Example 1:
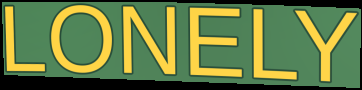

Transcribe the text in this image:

LONELY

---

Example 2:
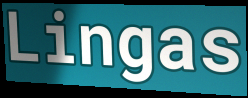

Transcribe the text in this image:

Lingas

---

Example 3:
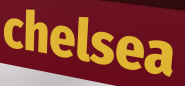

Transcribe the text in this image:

chelsea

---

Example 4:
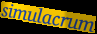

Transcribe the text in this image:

simulacrum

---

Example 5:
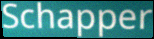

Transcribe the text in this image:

Schapper